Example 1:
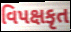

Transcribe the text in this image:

વિપક્ષકૃત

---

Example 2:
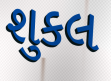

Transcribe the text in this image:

શુકલ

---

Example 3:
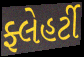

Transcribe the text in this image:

ફ્લેહર્ટી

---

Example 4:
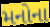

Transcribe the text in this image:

મનોના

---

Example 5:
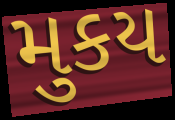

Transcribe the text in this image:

મુકય